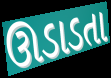
ઊડાડતા